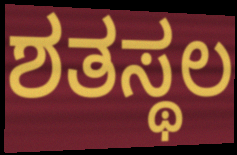
ಶತಸ್ಥಲ